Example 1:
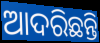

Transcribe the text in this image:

ଆଦରିଛନ୍ତି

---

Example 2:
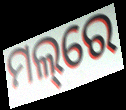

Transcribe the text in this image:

ମଲ୍‌ରେ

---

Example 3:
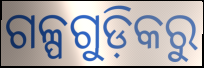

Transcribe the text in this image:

ଗଳ୍ପଗୁଡ଼ିକରୁ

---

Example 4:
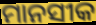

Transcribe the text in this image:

ମାନସୀକ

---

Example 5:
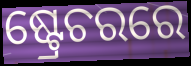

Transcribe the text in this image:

ଷ୍ଟ୍ରେଚରରେ